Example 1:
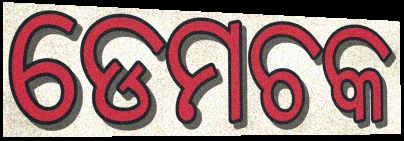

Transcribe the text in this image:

ଡେମଚକ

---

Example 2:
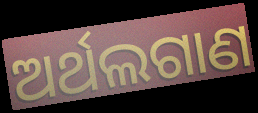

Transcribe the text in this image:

ଅର୍ଥଲଗାଣ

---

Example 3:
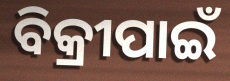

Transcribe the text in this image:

ବିକ୍ରୀପାଇଁ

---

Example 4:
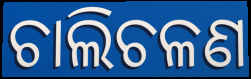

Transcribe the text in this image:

ଚାଲିଚଳଣ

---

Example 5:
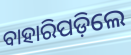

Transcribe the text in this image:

ବାହାରିପଡ଼ିଲେ